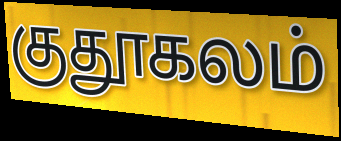
குதூகலம்